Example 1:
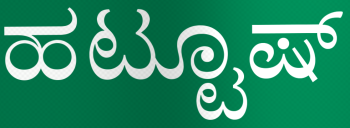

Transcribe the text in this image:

ಹಟ್ಟೂಷ್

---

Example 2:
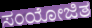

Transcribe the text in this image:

ಸಂಯೋಜಿತ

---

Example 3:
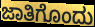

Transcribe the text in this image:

ಜಾತಿಗೊಂದು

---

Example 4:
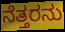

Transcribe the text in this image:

ನೆತ್ತರನು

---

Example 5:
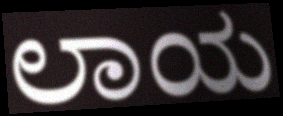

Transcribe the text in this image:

ಲಾಯ